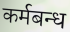
कर्मबन्ध